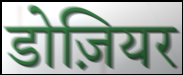
डोज़ियर